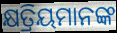
କ୍ଷତ୍ରିୟମାନଙ୍କ